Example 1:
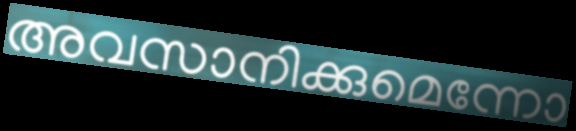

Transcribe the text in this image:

അവസാനിക്കുമെന്നോ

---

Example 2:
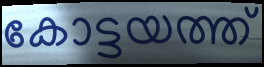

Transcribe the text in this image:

കോട്ടയത്ത്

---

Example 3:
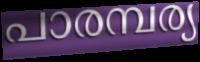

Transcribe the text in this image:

പാരമ്പര്യ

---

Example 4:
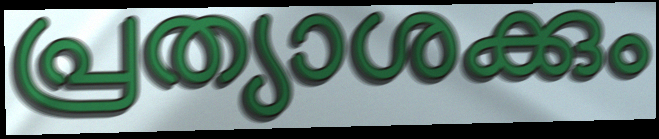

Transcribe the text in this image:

പ്രത്യാശക്കും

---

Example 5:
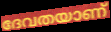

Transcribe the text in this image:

ദേവതയാണ്